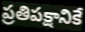
ప్రతిపక్షానికే